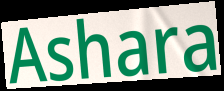
Ashara